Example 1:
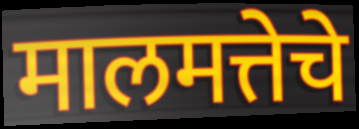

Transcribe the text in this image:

मालमत्तेचे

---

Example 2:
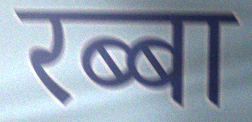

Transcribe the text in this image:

रब्बा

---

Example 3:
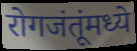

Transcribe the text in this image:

रोगजंतूंमध्ये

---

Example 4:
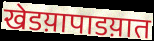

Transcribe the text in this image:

खेडय़ापाडय़ात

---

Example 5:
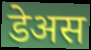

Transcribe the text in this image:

डेअस